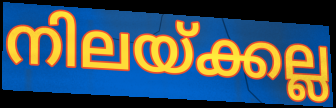
നിലയ്ക്കല്ല